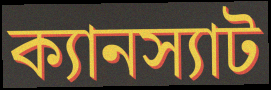
ক্যানস্যাট